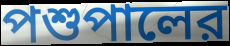
পশুপালের